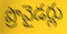
ప్రొవైడర్లు